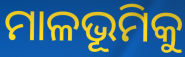
ମାଳଭୂମିକୁ